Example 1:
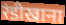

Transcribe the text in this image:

रंडीखाना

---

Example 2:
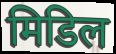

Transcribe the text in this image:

मिडिल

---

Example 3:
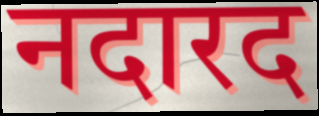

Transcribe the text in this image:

नदारद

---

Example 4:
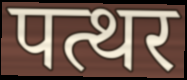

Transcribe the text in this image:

पत्थर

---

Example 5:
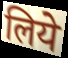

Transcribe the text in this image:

लिये